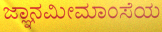
ಜ್ಞಾನಮೀಮಾಂಸೆಯ